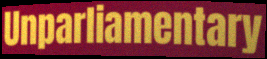
Unparliamentary